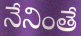
నేనింతే